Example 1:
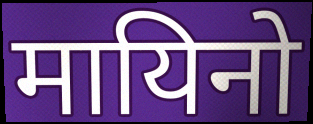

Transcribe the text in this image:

मायिनो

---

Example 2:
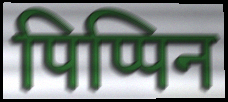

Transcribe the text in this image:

पिप्पिन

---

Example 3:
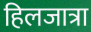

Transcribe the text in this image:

हिलजात्रा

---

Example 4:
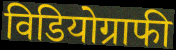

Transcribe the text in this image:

विडियोग्राफी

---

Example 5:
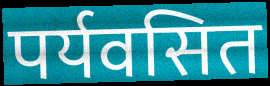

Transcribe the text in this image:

पर्यवसित